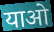
याओ